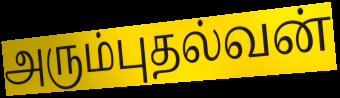
அரும்புதல்வன்